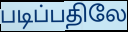
படிப்பதிலே